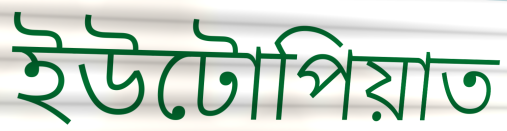
ইউটোপিয়াত